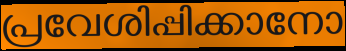
പ്രവേശിപ്പിക്കാനോ